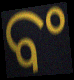
ବଂ